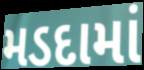
મડદામાં